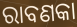
ରାବଣକା